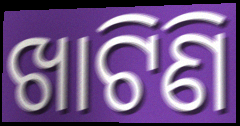
ଖାଟିଣି